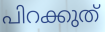
പിറക്കുത്